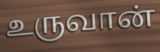
உருவான்